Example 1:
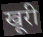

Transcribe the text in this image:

खूरी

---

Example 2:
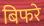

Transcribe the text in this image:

बिफरे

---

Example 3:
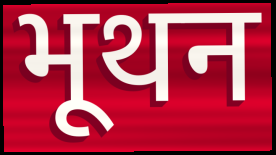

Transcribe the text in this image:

भूथन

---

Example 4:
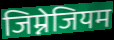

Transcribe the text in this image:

जिम्नेजियम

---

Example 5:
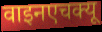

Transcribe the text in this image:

वाइनएचक्यू